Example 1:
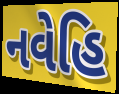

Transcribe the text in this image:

નવેહિ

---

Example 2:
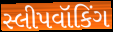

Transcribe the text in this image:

સ્લીપવૉકિંગ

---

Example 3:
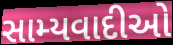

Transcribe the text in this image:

સામ્યવાદીઓ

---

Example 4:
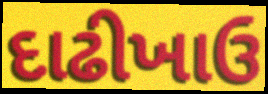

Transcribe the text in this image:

દાઢીખાઉ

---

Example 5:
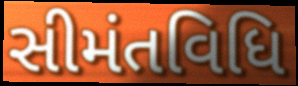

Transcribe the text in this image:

સીમંતવિધિ